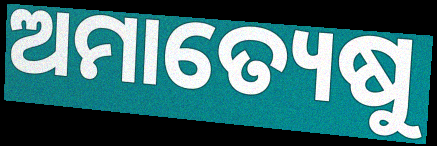
ଅମାତ୍ୟେଷୁ